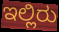
ಇಲ್ಲಿರು